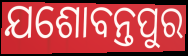
ଯଶୋବନ୍ତପୁର